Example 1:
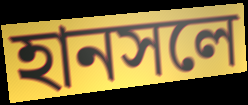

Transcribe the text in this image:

হানসলে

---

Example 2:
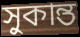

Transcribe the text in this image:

সুকান্ত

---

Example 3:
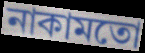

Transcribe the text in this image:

নাকামতো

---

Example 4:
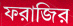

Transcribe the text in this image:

ফরাজির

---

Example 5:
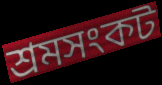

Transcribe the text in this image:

শ্রমসংকট